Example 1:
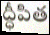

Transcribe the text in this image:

ద్ధీపిత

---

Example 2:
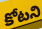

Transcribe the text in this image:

కోటని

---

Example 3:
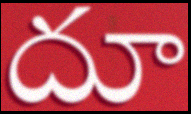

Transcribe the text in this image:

దూ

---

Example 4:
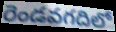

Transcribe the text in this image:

రెండవగదిలో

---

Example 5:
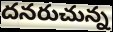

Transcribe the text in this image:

దనరుచున్న